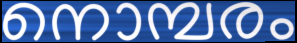
നൊമ്പരം